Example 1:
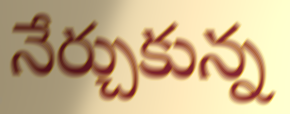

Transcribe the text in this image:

నేర్చుకున్న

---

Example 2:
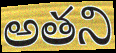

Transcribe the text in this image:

అతని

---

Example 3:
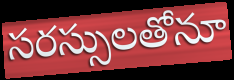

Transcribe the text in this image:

సరస్సులతోనూ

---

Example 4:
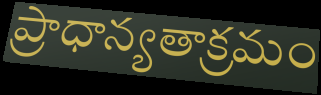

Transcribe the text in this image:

ప్రాధాన్యతాక్రమం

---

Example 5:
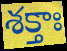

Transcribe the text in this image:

శక్తాః